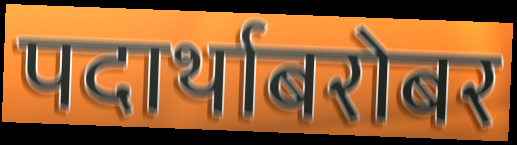
पदार्थाबरोबर